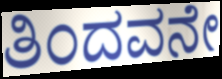
ತಿಂದವನೇ